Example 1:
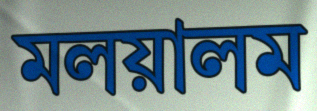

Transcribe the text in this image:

মলয়ালম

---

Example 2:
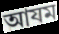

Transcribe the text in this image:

আযম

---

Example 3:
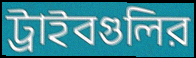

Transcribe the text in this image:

ট্রাইবগুলির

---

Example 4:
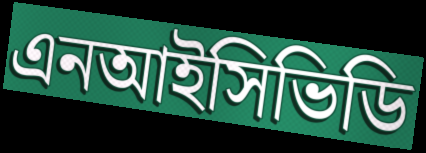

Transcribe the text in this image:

এনআইসিভিডি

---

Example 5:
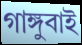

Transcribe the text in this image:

গাঙ্গুবাই